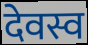
देवस्व